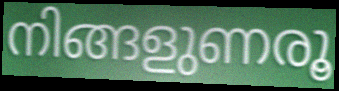
നിങ്ങളുണരൂ